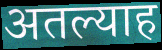
अतल्याह